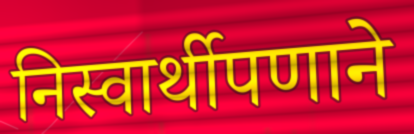
निस्वार्थीपणाने